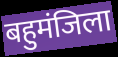
बहुमंजिला